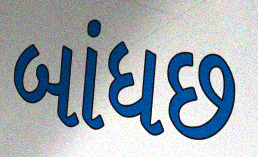
બાંધછ